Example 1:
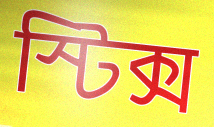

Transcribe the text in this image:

স্টিক্স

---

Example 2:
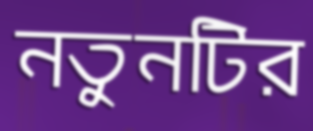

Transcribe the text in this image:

নতুনটির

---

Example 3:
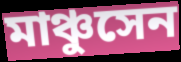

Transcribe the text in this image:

মাঞ্চুসেন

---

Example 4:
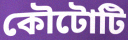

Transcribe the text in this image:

কৌটোটি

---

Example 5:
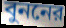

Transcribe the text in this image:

বুননের